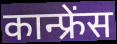
कान्फ्रेंस